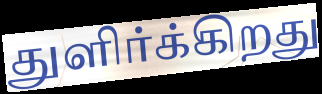
துளிர்க்கிறது